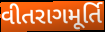
વીતરાગમૂર્તિ